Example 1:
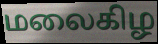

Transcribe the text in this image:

மலைகிழ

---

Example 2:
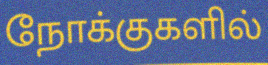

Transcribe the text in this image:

நோக்குகளில்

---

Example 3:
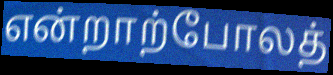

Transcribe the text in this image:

என்றாற்போலத்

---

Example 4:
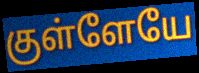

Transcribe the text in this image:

குள்ளேயே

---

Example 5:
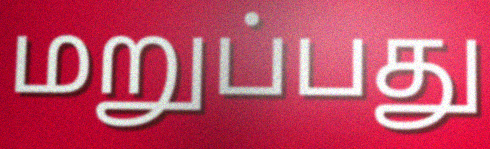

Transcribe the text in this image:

மறுப்பது